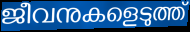
ജീവനുകളെടുത്ത്